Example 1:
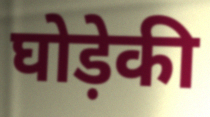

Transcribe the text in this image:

घोड़ेकी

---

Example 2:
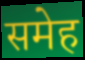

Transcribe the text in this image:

समेह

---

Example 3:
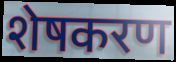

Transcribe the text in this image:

शेषकरण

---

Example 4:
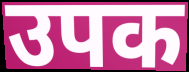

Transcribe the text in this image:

उपक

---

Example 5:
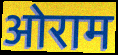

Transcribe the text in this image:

ओराम